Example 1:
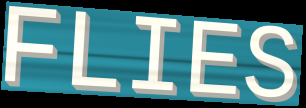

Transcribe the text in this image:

FLIES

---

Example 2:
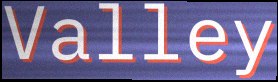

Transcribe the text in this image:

Valley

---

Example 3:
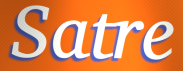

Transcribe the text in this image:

Satre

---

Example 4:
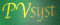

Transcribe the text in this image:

PVsyst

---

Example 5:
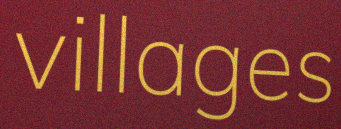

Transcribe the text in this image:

villages